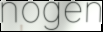
nogen